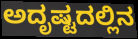
ಅದೃಷ್ಟದಲ್ಲಿನ